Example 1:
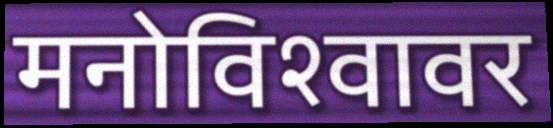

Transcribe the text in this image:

मनोविश्वावर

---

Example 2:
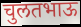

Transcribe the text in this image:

चुलतभाऊ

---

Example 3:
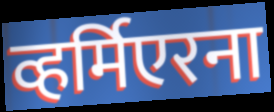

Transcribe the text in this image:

व्हर्मिएरना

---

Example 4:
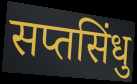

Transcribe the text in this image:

सप्तसिंधु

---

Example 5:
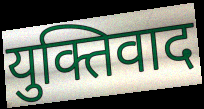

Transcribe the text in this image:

युक्तिवाद